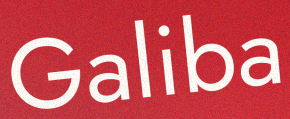
Galiba